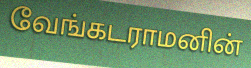
வேங்கடராமனின்